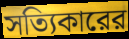
সত্যিকারের